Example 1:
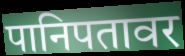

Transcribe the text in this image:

पानिपतावर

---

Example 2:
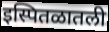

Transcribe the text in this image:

इस्पितळातली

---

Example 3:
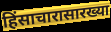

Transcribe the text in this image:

हिंसाचारासारख्या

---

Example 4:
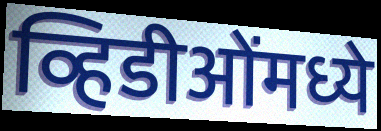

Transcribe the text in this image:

व्हिडीओंमध्ये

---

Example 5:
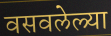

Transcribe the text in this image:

वसवलेल्या